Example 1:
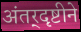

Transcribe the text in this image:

अंतर्दृष्टीने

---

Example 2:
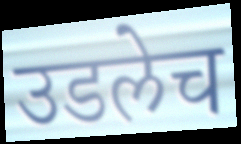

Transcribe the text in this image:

उडलेच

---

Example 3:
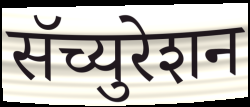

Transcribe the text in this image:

सॅच्युरेशन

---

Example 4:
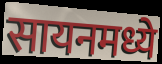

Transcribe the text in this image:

सायनमध्ये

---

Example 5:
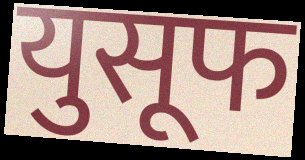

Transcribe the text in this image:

युसूफ